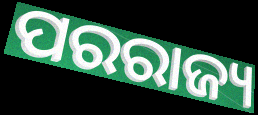
ପରରାଜ୍ୟ